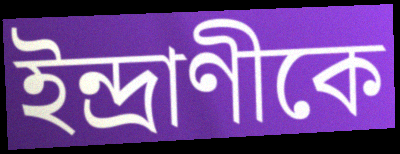
ইন্দ্রাণীকে